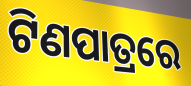
ଟିଣପାତ୍ରରେ